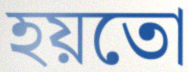
হয়তো